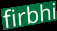
firbhi